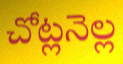
చోట్లనెల్ల